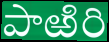
పాఱిరి